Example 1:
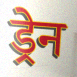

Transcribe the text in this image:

ड्रेन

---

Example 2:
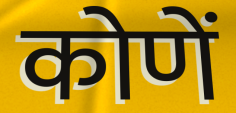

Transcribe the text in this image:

कोणें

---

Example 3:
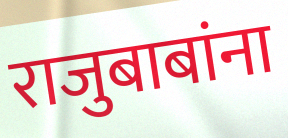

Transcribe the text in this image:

राजुबाबांना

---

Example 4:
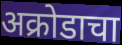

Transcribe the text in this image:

अक्रोडाचा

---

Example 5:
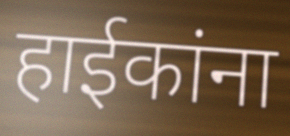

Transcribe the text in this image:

हाईकांना